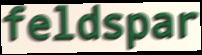
feldspar